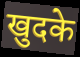
खुदके